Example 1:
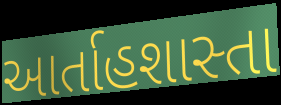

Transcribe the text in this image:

આર્તાહશાસ્તા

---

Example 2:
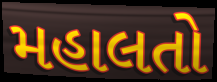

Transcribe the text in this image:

મહાલતો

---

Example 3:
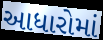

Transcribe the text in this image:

આધારોમાં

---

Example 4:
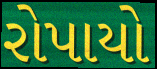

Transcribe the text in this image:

રોપાયો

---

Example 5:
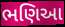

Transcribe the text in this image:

ભણિઆ